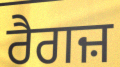
ਰੈਗਜ਼